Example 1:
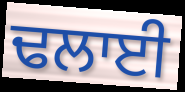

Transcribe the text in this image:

ਢਲਾਈ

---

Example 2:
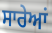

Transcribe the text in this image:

ਸਾਰੇਆਂ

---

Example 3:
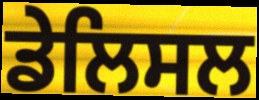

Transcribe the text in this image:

ਡੇਲਿਸਲ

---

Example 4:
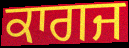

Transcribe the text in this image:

ਕਾਗਜ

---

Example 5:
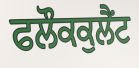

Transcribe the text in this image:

ਫਲੌਕਕੁਲੈਂਟ